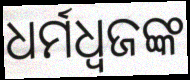
ଧର୍ମଧ୍ୱଜଙ୍କ